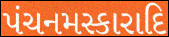
પંચનમસ્કારાદિ